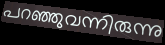
പറഞ്ഞുവന്നിരുന്നു